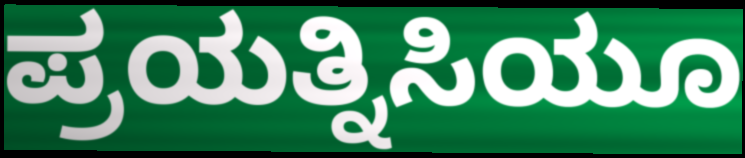
ಪ್ರಯತ್ನಿಸಿಯೂ